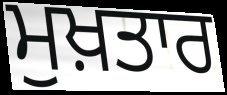
ਮੁਖ਼ਤਾਰ